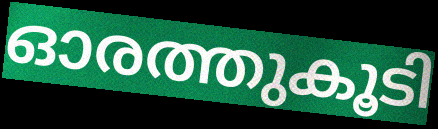
ഓരത്തുകൂടി